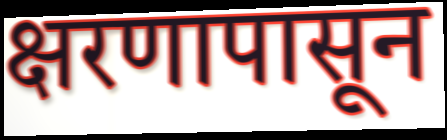
क्षरणापासून